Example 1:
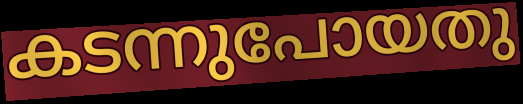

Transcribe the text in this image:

കടന്നുപോയതു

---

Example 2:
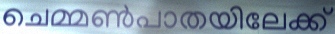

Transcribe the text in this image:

ചെമ്മൺപാതയിലേക്ക്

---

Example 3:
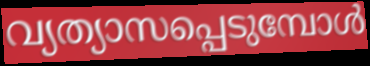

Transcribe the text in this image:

വ്യത്യാസപ്പെടുമ്പോൾ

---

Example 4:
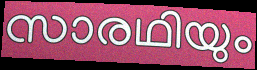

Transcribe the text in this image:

സാരഥിയും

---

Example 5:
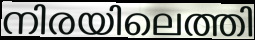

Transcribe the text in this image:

നിരയിലെത്തി